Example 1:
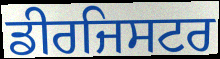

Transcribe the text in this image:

ਡੀਰਜਿਸਟਰ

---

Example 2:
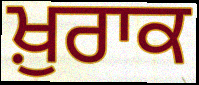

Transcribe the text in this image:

ਖ਼ੁਰਾਕ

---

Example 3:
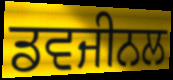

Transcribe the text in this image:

ਡਵਜੀਨਲ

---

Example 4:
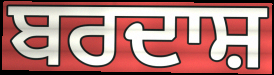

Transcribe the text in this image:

ਬਰਦਾਸ਼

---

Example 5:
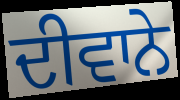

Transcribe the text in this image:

ਦੀਵਾਨੇ